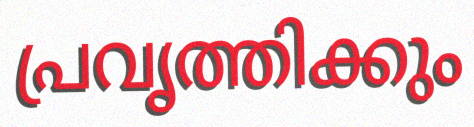
പ്രവൃത്തിക്കും